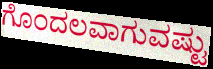
ಗೊಂದಲವಾಗುವಷ್ಟು